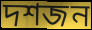
দশজন